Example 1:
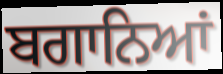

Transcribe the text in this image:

ਬਗਾਨਿਆਂ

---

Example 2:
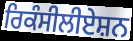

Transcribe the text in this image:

ਰਿਕੰਸੀਲੀਏਸ਼ਨ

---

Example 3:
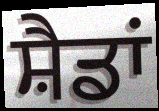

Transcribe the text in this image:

ਸ਼ੈਡਾਂ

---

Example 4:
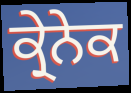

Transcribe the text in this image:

ਕ੍ਰੇਨੇਕ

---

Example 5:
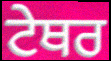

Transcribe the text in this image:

ਟੇਥਰ